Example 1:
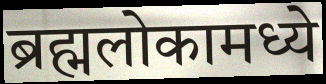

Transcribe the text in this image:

ब्रह्मलोकामध्ये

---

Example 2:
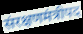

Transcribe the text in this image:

संरक्षणमंत्रीपद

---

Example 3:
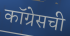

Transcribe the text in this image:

कॉग्रेसची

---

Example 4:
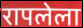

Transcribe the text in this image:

रापलेला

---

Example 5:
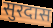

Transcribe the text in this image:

सुरदास